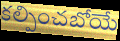
కల్పించబోయే